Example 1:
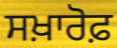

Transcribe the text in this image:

ਸਖ਼ਾਰੋਫ਼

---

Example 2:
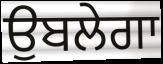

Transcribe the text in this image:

ਉਬਲੇਗਾ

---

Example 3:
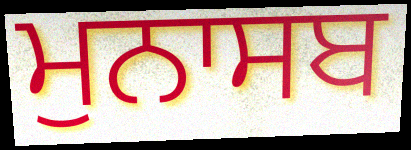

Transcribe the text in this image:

ਮੁਨਾਸਬ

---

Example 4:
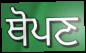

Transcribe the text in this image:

ਥੋਪਣ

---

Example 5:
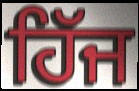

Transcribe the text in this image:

ਹਿੱਜ